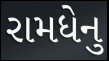
રામધેનુ